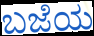
ಬಜೆಯ